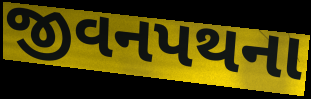
જીવનપથના